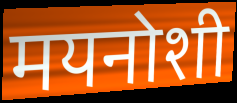
मयनोशी